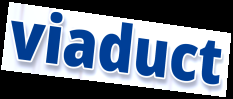
viaduct